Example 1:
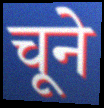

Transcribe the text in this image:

चूने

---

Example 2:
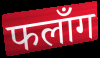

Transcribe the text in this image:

फलाँग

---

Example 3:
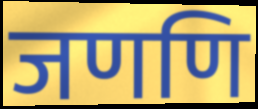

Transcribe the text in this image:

जणणि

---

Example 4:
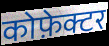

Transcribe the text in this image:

कोफ़ेक्टर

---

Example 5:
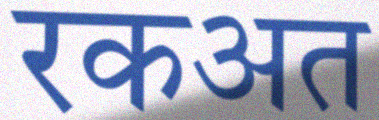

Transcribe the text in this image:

रकअत